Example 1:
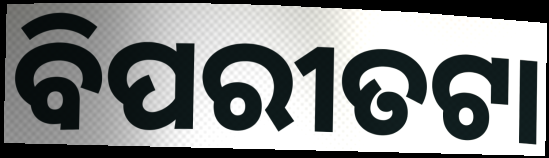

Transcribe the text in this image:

ବିପରୀତଟା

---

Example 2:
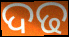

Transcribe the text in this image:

ଦଢ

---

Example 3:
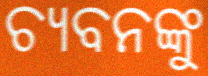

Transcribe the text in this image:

ଚ୍ୟବନଙ୍କୁ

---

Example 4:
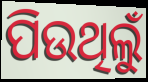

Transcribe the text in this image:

ପିଉଥିଲୁଁ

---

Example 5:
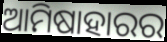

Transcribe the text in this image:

ଆମିଷାହାରର